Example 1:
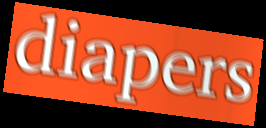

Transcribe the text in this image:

diapers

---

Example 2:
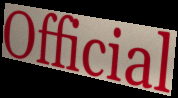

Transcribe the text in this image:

Official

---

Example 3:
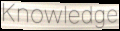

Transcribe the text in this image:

Knowledge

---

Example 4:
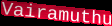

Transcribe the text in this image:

Vairamuthu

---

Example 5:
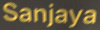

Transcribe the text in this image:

Sanjaya